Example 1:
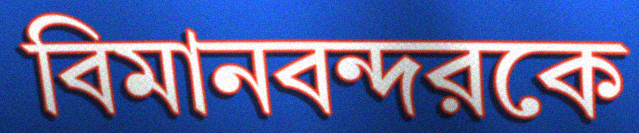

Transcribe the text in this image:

বিমানবন্দরকে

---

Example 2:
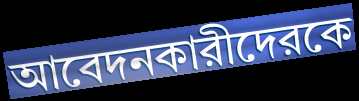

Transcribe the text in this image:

আবেদনকারীদেরকে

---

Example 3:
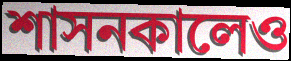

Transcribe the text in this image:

শাসনকালেও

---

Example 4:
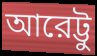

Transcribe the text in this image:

আরেট্টু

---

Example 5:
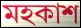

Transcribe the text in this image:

মহকাশ